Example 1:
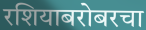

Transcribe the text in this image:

रशियाबरोबरचा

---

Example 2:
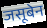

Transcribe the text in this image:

जसूबेन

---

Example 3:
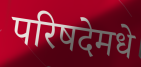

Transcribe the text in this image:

परिषदेमधे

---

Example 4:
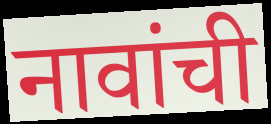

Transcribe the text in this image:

नावांची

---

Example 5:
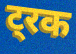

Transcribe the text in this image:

ट्रक